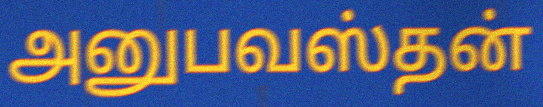
அனுபவஸ்தன்